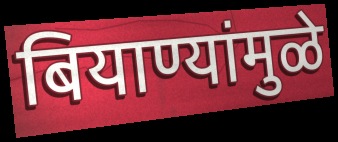
बियाण्यांमुळे